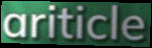
ariticle